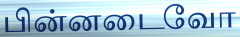
பின்னடைவோ